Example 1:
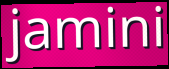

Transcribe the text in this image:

jamini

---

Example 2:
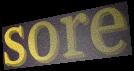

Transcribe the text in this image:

sore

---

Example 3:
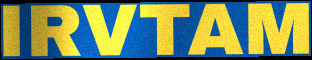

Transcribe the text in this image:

IRVTAM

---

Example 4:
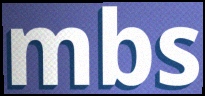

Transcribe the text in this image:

mbs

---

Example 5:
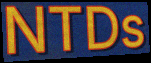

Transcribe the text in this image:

NTDs